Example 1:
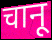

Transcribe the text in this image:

चानू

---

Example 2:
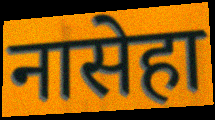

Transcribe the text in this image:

नासेहा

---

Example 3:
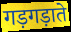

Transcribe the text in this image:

गड़गड़ाते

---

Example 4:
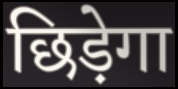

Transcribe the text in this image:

छिड़ेगा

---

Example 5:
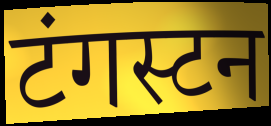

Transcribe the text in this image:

टंगस्टन